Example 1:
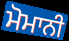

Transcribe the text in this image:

ਮੋਮਾਨੀ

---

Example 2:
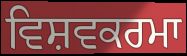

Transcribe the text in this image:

ਵਿਸ਼ਵਕਰਮਾ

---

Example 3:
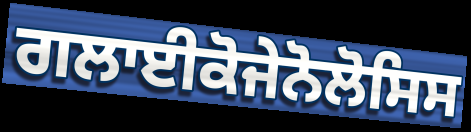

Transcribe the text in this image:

ਗਲਾਈਕੋਜੇਨੋਲੋਸਿਸ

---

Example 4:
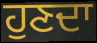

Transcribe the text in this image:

ਹੁਣਦਾ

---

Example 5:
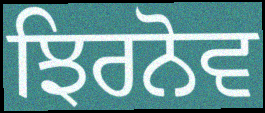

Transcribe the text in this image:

ਝਿਰਨੋਵ